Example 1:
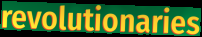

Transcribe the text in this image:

revolutionaries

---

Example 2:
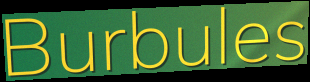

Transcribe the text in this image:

Burbules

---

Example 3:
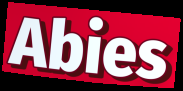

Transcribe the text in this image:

Abies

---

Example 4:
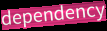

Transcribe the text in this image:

dependency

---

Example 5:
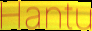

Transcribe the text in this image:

Hantu